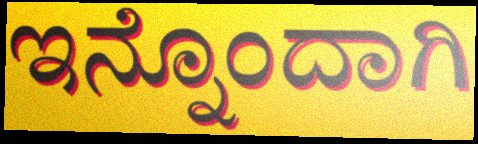
ಇನ್ನೊಂದಾಗಿ